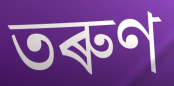
তৰুণ